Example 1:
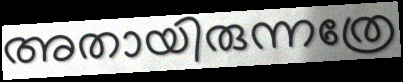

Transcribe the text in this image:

അതായിരുന്നത്രേ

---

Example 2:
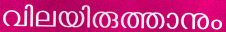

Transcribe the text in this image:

വിലയിരുത്താനും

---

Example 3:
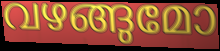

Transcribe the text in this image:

വഴങ്ങുമോ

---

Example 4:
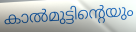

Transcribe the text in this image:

കാൽമുട്ടിന്റെയും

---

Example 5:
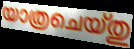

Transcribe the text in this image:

യാത്രചെയ്തു